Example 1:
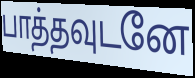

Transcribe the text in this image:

பாத்தவுடனே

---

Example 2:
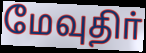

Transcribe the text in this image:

மேவுதிர்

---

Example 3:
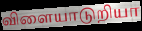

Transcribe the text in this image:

விளையாடுறியா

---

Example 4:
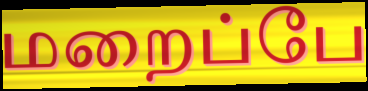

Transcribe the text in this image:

மறைப்பே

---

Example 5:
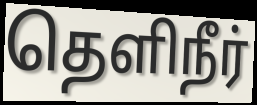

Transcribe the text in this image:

தெளிநீர்